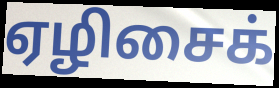
ஏழிசைக்